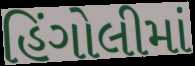
હિંગોલીમાં